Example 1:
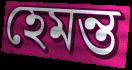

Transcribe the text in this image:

হেমন্ত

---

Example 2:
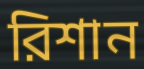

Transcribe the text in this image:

রিশান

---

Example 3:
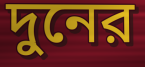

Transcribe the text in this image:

দুনের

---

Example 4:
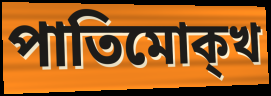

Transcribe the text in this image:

পাতিমোক্খ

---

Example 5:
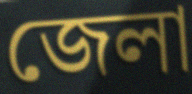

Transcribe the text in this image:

জেলা